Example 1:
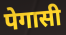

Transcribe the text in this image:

पेगासी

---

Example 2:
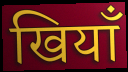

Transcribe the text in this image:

खियाँ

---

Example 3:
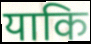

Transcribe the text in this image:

याकि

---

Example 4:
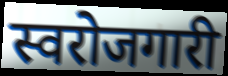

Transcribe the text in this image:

स्वरोजगारी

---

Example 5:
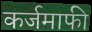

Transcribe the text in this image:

कर्जमाफी